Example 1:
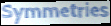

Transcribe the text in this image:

Symmetries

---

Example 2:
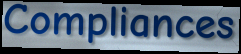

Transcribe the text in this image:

Compliances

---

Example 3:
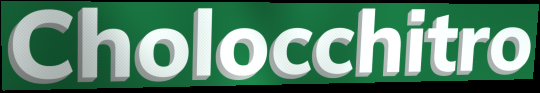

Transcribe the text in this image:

Cholocchitro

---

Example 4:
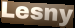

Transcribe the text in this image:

Lesny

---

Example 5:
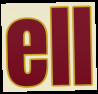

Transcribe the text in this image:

ell